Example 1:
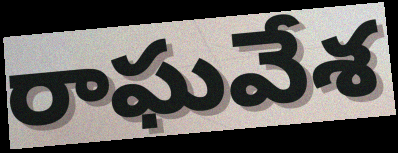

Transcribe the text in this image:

రాఘవేశ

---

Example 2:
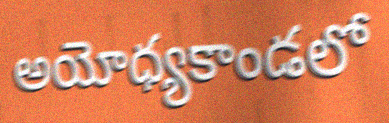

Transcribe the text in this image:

అయోధ్యకాండలో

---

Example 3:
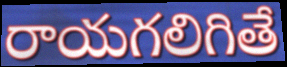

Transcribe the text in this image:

రాయగలిగితే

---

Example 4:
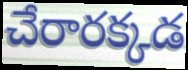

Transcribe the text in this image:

చేరారక్కడ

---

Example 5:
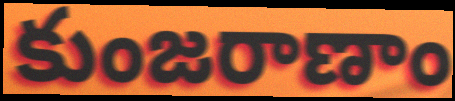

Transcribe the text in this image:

కుంజరాణాం